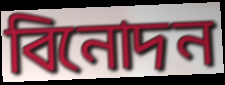
বিনোদন